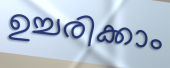
ഉച്ചരിക്കാം